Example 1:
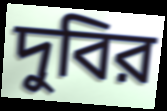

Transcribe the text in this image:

দুবির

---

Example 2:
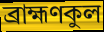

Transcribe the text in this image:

ব্রাহ্মণকুল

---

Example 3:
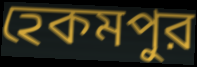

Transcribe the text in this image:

হেকমপুর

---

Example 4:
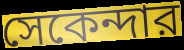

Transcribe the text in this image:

সেকেন্দার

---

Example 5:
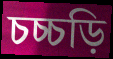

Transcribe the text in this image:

চচ্চড়ি